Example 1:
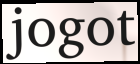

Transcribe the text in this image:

jogot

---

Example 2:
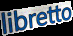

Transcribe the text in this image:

libretto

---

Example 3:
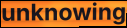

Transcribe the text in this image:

unknowing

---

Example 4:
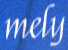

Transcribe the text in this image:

mely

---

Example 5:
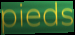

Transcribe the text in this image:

pieds